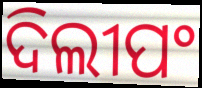
ଦିଲୀପଂ